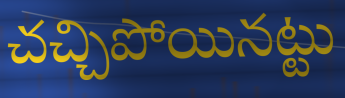
చచ్చిపోయినట్టు